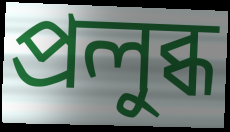
প্রলুব্ধ